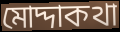
মোদ্দাকথা